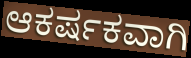
ಆಕರ್ಷಕವಾಗಿ